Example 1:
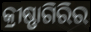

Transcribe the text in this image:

କ୍ରୀଷ୍ଣାଗିରିର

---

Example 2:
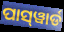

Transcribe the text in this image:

ପାସ୍‌ୱାର୍ଡ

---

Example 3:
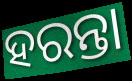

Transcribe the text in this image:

ହରନ୍ତା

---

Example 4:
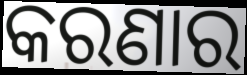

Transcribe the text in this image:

କରଣାର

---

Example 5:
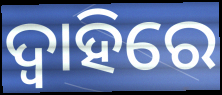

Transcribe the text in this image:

ଦ୍ୱାହିରେ